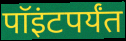
पॉइंटपर्यंत